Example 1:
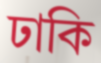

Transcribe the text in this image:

ঢাকি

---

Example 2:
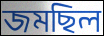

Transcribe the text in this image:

জমছিল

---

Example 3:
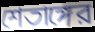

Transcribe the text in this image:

শেতাঙ্গের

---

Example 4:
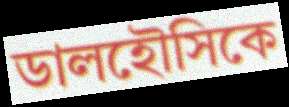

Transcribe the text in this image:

ডালহৌসিকে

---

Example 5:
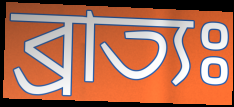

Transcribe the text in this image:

ব্রাত্যঃ